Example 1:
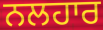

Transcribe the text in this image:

ਨਲਹਾਰ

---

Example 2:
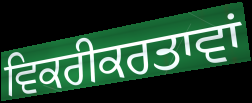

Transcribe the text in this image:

ਵਿਕਰੀਕਰਤਾਵਾਂ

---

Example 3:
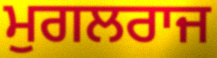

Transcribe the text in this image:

ਮੁਗਲਰਾਜ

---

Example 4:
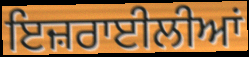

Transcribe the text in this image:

ਇਜ਼ਰਾਈਲੀਆਂ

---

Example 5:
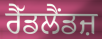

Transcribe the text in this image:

ਰੈੱਡਲੈਂਡਜ਼